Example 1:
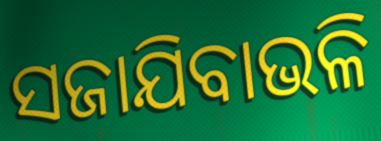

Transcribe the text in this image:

ସଜାଯିବାଭଳି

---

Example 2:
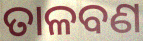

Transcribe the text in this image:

ତାଳବଣ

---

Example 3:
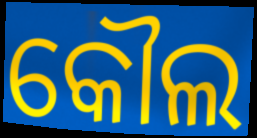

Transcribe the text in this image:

କୌଲ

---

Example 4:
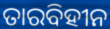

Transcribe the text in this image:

ତାରବିହୀନ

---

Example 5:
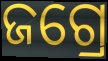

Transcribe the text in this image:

ଜଗ୍ରେ